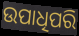
ଉପାଧିପରି